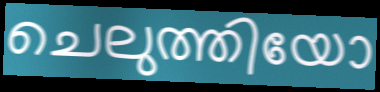
ചെലുത്തിയോ